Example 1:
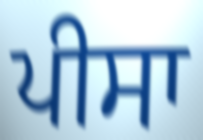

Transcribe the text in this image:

ਪੀਸਾ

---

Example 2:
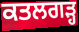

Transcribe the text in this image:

ਕਤਲਗੜ੍ਹ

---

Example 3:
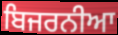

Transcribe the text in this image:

ਬਿਜਰਨੀਆ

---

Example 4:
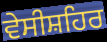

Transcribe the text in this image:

ਵੇਸੀਸ਼ਹਿਰ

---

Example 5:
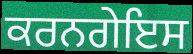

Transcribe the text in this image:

ਕਰਨਗੇਇਸ